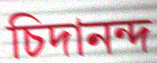
চিদানন্দ